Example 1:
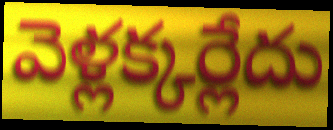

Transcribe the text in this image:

వెళ్లక్కర్లేదు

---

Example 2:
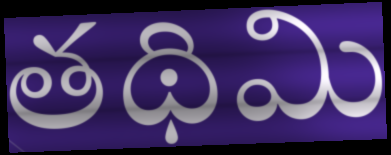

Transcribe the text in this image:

తథిమి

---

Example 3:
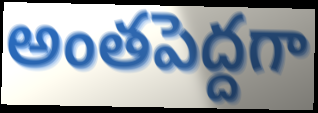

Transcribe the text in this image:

అంతపెద్దగా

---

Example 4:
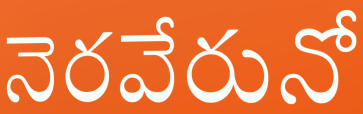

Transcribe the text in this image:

నెరవేరునో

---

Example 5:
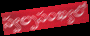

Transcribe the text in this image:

స్వల్పసంఖ్యలో